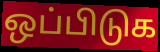
ஒப்பிடுக